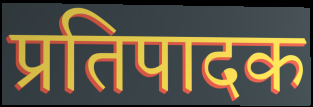
प्रतिपादक